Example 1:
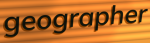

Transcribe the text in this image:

geographer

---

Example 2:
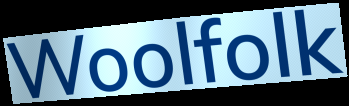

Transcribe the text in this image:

Woolfolk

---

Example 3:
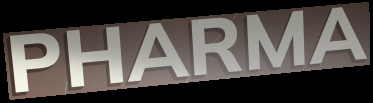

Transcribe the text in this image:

PHARMA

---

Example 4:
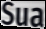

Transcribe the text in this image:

Sua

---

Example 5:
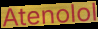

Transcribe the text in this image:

Atenolol